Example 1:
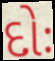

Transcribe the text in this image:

દોઃ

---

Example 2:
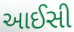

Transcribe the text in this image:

આઈસી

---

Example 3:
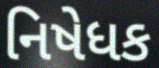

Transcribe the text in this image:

નિષેધક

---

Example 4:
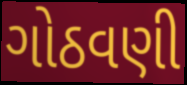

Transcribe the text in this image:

ગોઠવણી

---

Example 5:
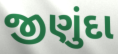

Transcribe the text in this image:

જીણુંદા